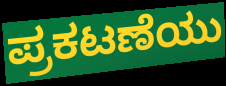
ಪ್ರಕಟಣೆಯು